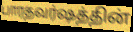
பாரதவர்ஷத்தின்